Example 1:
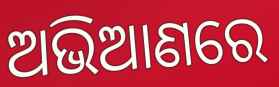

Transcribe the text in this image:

ଅଭିଆଣରେ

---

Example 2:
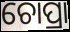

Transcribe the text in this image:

ଚୋପ୍ରା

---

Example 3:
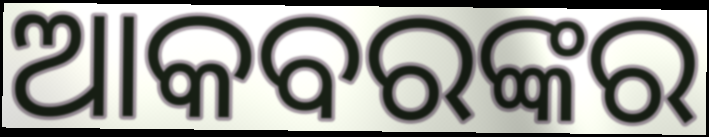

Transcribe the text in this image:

ଆକବରଙ୍କର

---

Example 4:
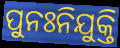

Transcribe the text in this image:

ପୁନଃନିଯୁକ୍ତି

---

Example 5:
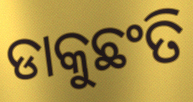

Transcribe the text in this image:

ଡାକୁଛଂତି